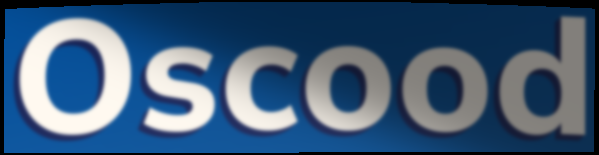
Oscood